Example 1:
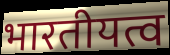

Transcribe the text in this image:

भारतीयत्व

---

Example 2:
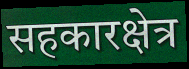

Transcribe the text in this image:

सहकारक्षेत्र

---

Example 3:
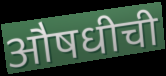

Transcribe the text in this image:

औषधीची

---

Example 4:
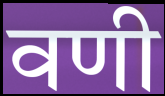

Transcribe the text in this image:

वणी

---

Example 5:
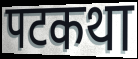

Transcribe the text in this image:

पटकथा